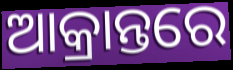
ଆକ୍ରାନ୍ତରେ